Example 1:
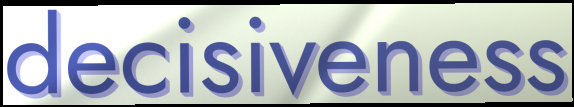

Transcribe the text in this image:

decisiveness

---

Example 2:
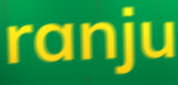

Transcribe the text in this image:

ranju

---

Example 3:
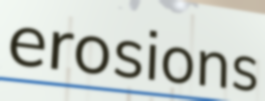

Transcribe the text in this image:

erosions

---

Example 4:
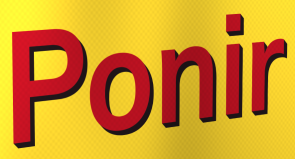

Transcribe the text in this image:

Ponir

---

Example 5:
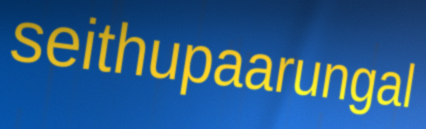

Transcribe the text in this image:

seithupaarungal